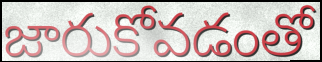
జారుకోవడంతో